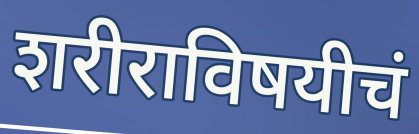
शरीराविषयीचं